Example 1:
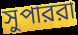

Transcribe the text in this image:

সুপাররা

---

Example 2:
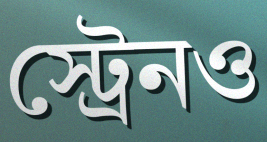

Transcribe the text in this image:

স্ট্রেনও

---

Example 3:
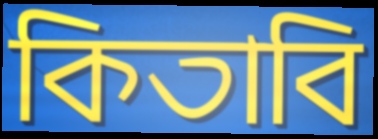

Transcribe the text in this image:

কিতাবি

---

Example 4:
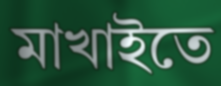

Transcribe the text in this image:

মাখাইতে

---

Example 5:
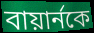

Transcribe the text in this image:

বায়ার্নকে